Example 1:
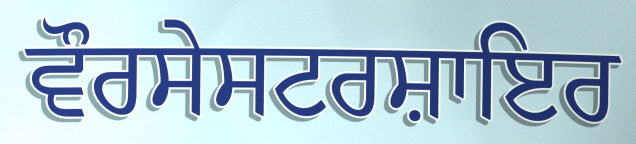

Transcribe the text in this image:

ਵੌਰਸੇਸਟਰਸ਼ਾਇਰ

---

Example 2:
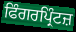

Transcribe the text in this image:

ਫਿੰਗਰਪ੍ਰਿੰਟਜ਼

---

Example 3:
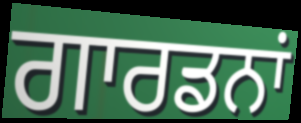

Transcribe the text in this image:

ਗਾਰਡਨਾਂ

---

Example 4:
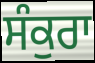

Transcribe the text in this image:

ਸੰਕੁਰਾ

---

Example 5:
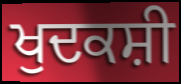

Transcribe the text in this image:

ਖੁਦਕਸ਼ੀ